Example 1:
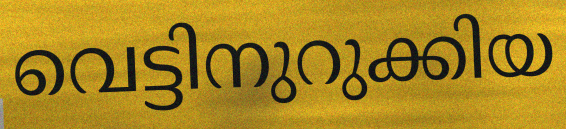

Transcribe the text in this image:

വെട്ടിനുറുക്കിയ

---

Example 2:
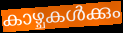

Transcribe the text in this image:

കാഴ്ചകൾക്കും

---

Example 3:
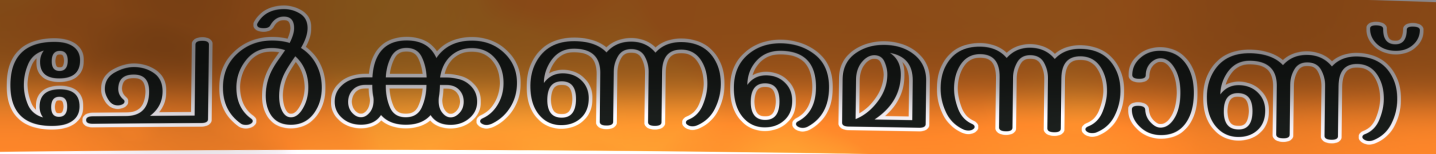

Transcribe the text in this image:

ചേർക്കണമെന്നാണ്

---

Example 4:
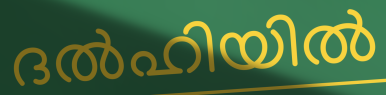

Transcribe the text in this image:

ദൽഹിയിൽ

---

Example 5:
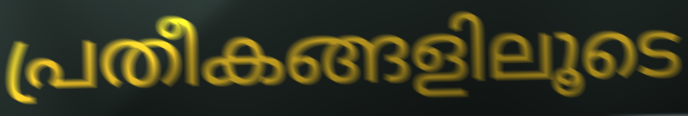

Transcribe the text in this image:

പ്രതീകങ്ങളിലൂടെ